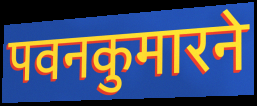
पवनकुमारने